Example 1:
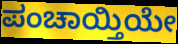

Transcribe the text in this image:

ಪಂಚಾಯ್ತಿಯೇ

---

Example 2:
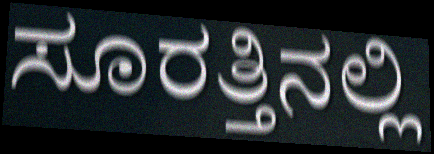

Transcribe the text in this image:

ಸೂರತ್ತಿನಲ್ಲಿ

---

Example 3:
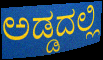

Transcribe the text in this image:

ಅಡ್ಡದಲ್ಲಿ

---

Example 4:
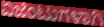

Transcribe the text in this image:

ಏಜೆಂಟುಗಳಾಗಿ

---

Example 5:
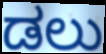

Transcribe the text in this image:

ಡಲು